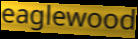
eaglewood